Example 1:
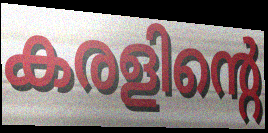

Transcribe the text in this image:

കരളിന്റെ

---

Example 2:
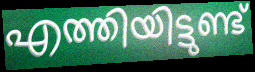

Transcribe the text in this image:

എത്തിയിട്ടുണ്ട്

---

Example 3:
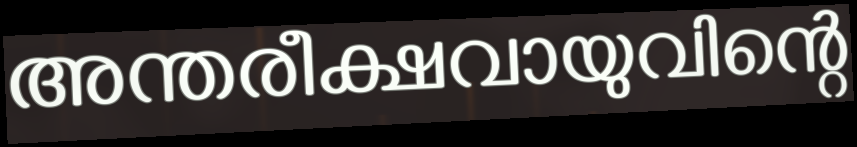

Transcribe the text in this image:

അന്തരീക്ഷവായുവിന്റെ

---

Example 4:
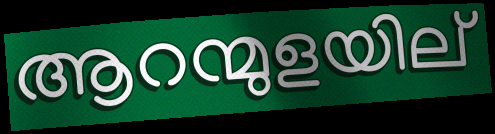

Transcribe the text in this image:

ആറന്മുളയില്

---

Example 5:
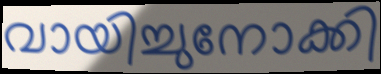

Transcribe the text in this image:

വായിച്ചുനോക്കി